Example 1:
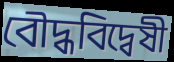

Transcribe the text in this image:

বৌদ্ধবিদ্বেষী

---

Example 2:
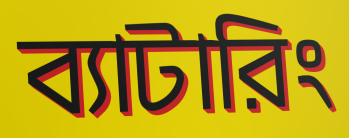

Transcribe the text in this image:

ব্যাটারিং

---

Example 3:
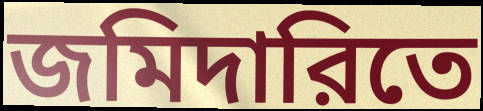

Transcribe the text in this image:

জমিদারিতে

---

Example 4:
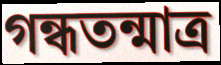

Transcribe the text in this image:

গন্ধতন্মাত্র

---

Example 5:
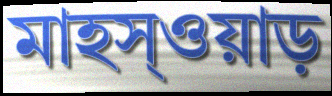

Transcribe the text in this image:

মাহস্ওয়াড়